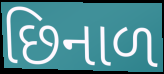
છિનાળ